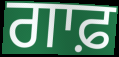
ਗਾਫ਼